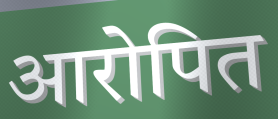
आरोपित